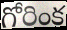
గోరింక